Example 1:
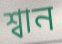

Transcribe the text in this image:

শ্বান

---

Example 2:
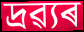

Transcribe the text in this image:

দ্ৰৱ্যৰ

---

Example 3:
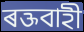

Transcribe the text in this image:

ৰক্তবাহী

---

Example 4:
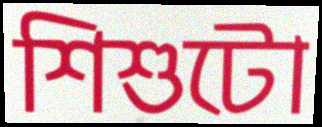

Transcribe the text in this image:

শিশুটো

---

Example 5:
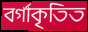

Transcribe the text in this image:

বৰ্গাকৃতিত